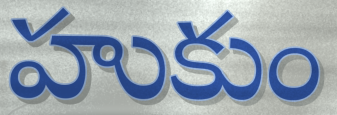
హుకుం